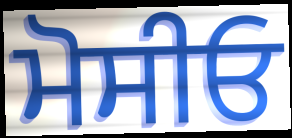
ਮੋਸੀਓ